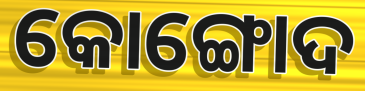
କୋଙ୍ଗୋଦ